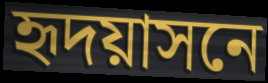
হৃদয়াসনে